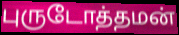
புருடோத்தமன்